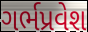
ગર્ભપ્રવેશ